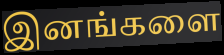
இனங்களை